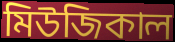
মিউজিকাল